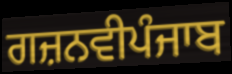
ਗਜ਼ਨਵੀਪੰਜਾਬ